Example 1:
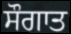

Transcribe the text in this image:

ਸੌਗਾਤ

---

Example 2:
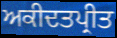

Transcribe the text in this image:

ਅਕੀਦਤਪ੍ਰੀਤ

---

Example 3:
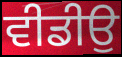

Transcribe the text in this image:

ਵੀਡੀਉ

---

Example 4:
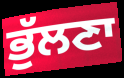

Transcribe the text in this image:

ਭੁੱਲਣਾ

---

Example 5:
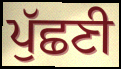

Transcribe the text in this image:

ਪੁੱਛਣੀ